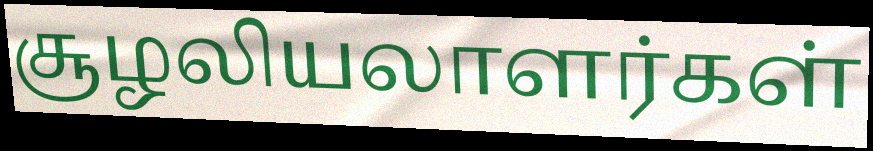
சூழலியலாளர்கள்